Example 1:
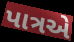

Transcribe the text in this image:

પાત્રએ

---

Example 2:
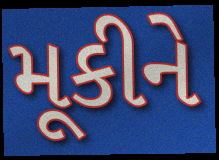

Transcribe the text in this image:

મૂકીને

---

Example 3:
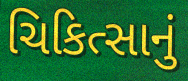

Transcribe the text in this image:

ચિકિત્સાનું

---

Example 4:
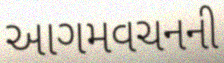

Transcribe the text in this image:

આગમવચનની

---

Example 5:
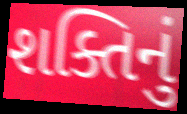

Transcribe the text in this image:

શક્તિનું